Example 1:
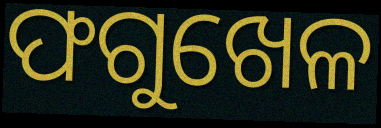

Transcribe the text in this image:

ଫଗୁଖେଳ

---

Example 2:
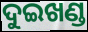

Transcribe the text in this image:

ଦୁଇଖଣ୍ଡ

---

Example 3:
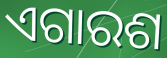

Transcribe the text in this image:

ଏଗାରଶ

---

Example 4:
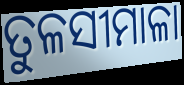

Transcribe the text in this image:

ତୁଳସୀମାଳା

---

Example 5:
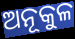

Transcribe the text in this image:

ଅନୂକୁଳ